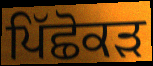
ਪਿੱਛੋਕੜ